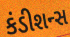
કંડીશન્સ